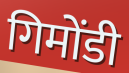
गिमोंडी